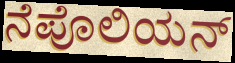
ನೆಪೊಲಿಯನ್